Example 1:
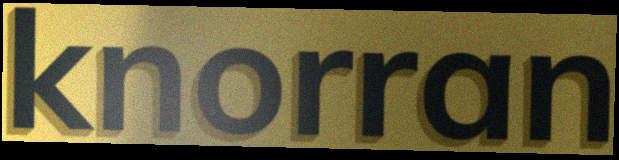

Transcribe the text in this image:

knorran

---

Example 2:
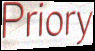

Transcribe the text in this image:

Priory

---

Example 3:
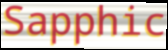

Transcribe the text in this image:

Sapphic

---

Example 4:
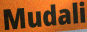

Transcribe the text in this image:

Mudali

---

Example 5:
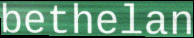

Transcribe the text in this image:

bethelan